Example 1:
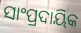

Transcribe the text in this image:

ସାଂପ୍ରଦାୟିକ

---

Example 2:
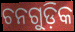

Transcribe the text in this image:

ଚନଗୁଡ଼ିକ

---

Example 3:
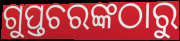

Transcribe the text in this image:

ଗୁପ୍ତଚରଙ୍କଠାରୁ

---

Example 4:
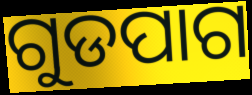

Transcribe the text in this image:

ଗୁଡପାଗ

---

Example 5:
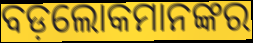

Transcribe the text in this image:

ବଡ଼ଲୋକମାନଙ୍କର